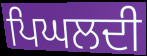
ਪਿਘਲਦੀ